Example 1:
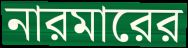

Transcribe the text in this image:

নারমারের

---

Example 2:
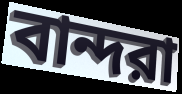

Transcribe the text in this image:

বান্দরা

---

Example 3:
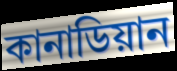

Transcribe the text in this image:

কানাডিয়ান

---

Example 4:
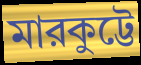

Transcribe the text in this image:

মারকুট্টে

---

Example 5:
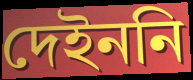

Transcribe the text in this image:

দেইননি